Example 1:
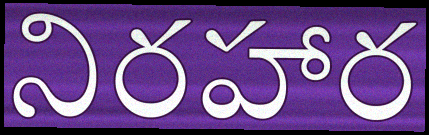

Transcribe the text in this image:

నిరహార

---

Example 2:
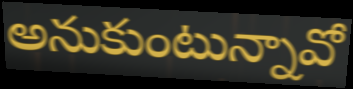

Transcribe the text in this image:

అనుకుంటున్నావో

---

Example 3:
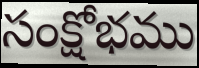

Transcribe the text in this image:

సంక్షోభము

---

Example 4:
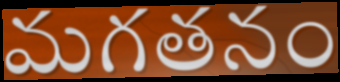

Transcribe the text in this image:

మగతనం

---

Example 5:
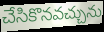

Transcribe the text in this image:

చేసికొనవచ్చును